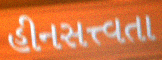
હીનસત્ત્વતા